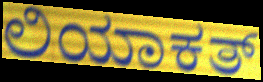
ಲಿಯಾಕತ್